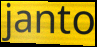
janto